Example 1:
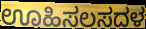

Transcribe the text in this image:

ಊಹಿಸಲಸದಳ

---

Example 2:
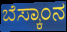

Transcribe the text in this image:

ಬೆಸ್ಕಾಂನ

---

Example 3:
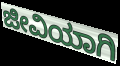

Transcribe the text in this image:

ಜೀವಿಯಾಗಿ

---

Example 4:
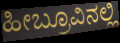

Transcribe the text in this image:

ಹೀಬ್ರೂವಿನಲ್ಲಿ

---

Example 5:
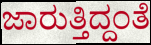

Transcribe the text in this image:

ಜಾರುತ್ತಿದ್ದಂತೆ